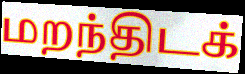
மறந்திடக்